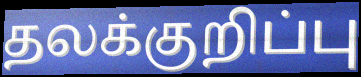
தலக்குறிப்பு